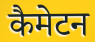
कैमेटन